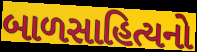
બાળસાહિત્યનો